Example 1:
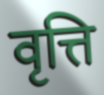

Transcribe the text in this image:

वृत्ति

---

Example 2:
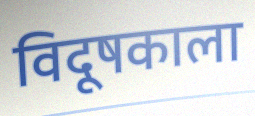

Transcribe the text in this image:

विदूषकाला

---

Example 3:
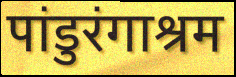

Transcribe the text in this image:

पांडुरंगाश्रम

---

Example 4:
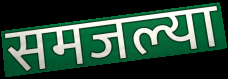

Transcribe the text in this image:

समजल्या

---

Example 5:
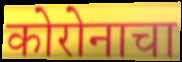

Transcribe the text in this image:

कोरोनाचा